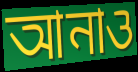
আনাও